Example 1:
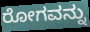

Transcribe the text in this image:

ರೋಗವನ್ನು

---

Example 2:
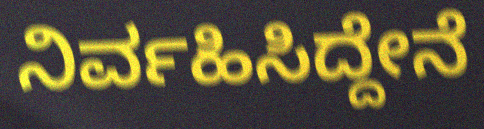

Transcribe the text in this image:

ನಿರ್ವಹಿಸಿದ್ದೇನೆ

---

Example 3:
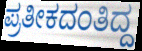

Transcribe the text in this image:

ಪ್ರತೀಕದಂತಿದ್ದ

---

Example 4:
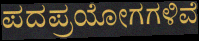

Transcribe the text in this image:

ಪದಪ್ರಯೋಗಗಳಿವೆ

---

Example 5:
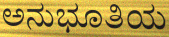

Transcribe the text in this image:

ಅನುಭೂತಿಯ